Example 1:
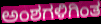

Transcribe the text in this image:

ಅಂಶಗಳಿಗಿಂತ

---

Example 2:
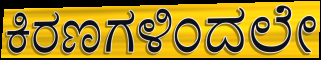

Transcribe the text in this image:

ಕಿರಣಗಳಿಂದಲೇ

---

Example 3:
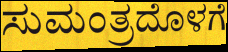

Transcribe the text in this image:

ಸುಮಂತ್ರದೊಳಗೆ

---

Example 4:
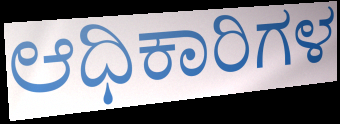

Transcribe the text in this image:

ಆಧಿಕಾರಿಗಳ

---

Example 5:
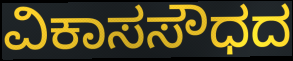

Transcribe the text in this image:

ವಿಕಾಸಸೌಧದ